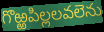
గొఱ్ఱపిల్లలవలెను